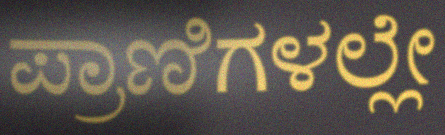
ಪ್ರಾಣಿಗಳಲ್ಲೇ